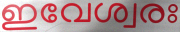
ഇവേശ്വരഃ